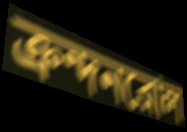
ক্রন্দনরোল